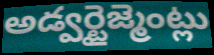
అడ్వర్టైజ్మెంట్లు